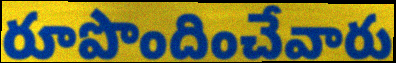
రూపొందించేవారు